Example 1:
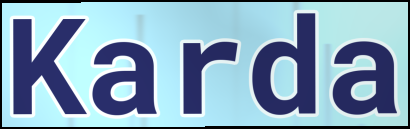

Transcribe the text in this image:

Karda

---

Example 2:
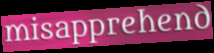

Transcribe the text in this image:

misapprehend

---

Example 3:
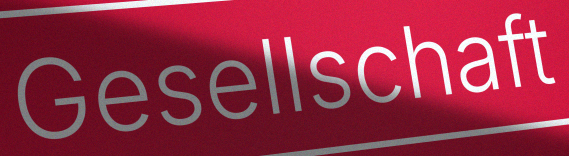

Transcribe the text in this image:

Gesellschaft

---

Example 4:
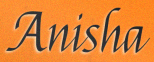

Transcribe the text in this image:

Anisha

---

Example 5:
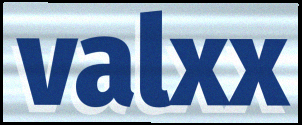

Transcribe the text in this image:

valxx